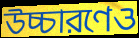
উচ্চারণেও